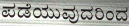
ಪಡೆಯುವುದರಿಂದ